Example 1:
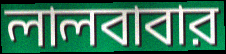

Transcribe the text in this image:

লালবাবার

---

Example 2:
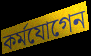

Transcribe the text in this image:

কর্মযোগেন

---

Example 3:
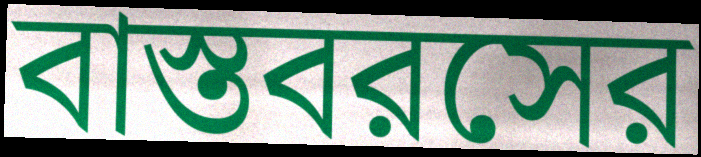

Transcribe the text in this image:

বাস্তবরসের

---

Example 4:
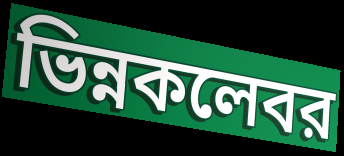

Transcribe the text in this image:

ভিন্নকলেবর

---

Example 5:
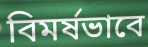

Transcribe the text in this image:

বিমর্ষভাবে